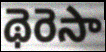
థెరెసా